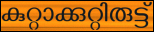
കുറ്റാക്കുറ്റിരുട്ട്